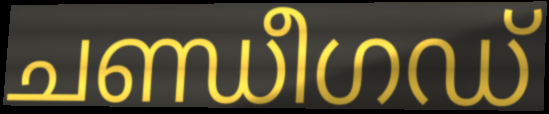
ചണ്ഡീഗഡ്